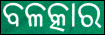
ବଳତ୍କାର